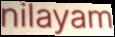
nilayam